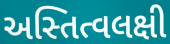
અસ્તિત્વલક્ષી